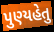
પુણ્યહેતુ